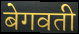
बेगवती